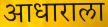
आधाराला